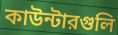
কাউন্টারগুলি